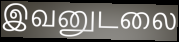
இவனுடலை